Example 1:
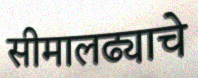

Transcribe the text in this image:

सीमालढ्याचे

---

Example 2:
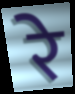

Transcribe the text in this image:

रे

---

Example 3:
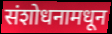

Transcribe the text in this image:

संशोधनामधून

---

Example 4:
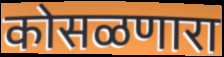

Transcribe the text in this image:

कोसळणारा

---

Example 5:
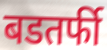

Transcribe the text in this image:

बडतर्फी